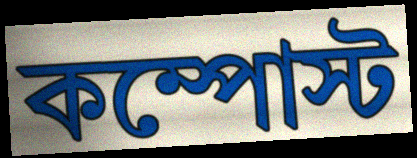
কম্পোস্ট